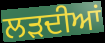
ਲੜਦੀਆਂ